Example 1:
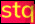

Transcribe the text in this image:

stq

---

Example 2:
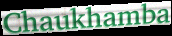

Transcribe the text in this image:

Chaukhamba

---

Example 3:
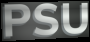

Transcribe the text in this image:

PSU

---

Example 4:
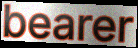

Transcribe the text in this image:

bearer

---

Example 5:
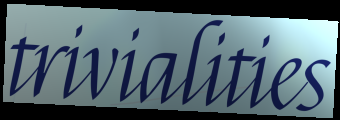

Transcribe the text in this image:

trivialities